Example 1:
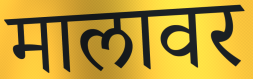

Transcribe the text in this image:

मालावर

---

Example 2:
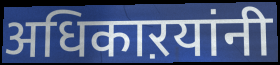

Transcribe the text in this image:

अधिकाऱयांनी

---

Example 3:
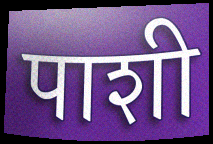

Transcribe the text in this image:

पाशी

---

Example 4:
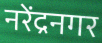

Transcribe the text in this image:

नरेंद्रनगर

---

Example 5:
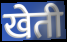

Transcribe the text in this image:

खेती